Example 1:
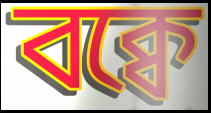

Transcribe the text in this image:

বক্বে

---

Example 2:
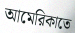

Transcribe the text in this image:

আমেরিকাতে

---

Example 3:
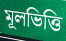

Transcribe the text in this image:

মূলভিত্তি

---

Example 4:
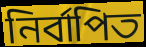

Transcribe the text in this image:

নির্বাপিত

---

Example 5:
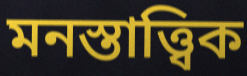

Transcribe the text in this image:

মনস্তাত্ত্বিক